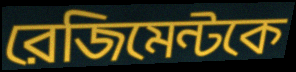
রেজিমেন্টকে